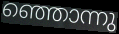
ഞ്ഞൊന്നു